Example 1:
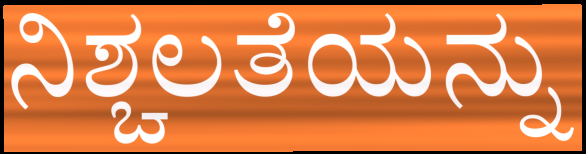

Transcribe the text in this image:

ನಿಶ್ಚಲತೆಯನ್ನು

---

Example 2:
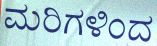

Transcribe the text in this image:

ಮರಿಗಳಿಂದ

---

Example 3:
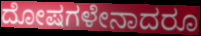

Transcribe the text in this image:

ದೋಷಗಳೇನಾದರೂ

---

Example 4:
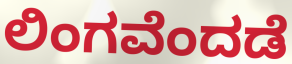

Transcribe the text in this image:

ಲಿಂಗವೆಂದಡೆ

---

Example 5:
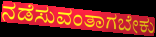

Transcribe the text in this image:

ನಡೆಸುವಂತಾಗಬೇಕು